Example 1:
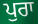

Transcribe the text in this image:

ਪੁਰਾ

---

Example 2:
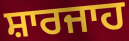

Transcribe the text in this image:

ਸ਼ਾਰਜਾਹ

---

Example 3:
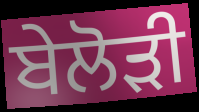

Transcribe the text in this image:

ਬੇਲੋੜੀ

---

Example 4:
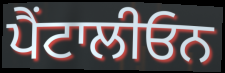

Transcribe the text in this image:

ਪੈਂਟਾਲੀਓਨ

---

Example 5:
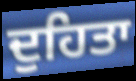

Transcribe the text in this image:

ਦੁਹਿਤਾ